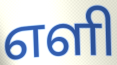
எளி